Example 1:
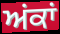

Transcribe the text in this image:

ਅਂਕਾਂ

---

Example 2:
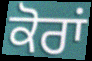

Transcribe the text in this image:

ਕੋਰਾਂ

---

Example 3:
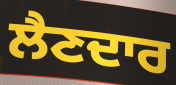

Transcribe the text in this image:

ਲੈਣਦਾਰ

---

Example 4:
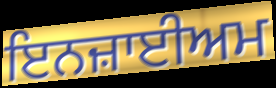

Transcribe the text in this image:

ਇਨਜ਼ਾਈਅਮ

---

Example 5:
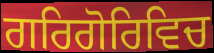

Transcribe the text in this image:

ਗਰਿਗੋਰਿਵਿਚ